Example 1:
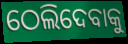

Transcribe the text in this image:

ଠେଲିଦେବାକୁ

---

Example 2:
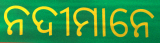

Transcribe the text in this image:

ନଦୀମାନେ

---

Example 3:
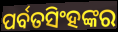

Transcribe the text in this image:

ପର୍ବତସିଂହଙ୍କର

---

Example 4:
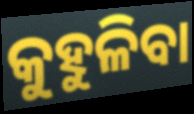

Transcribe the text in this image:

କୁହୁଳିବା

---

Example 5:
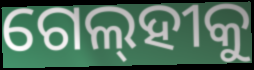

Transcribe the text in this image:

ଗେଲ୍‌ହୀକୁ